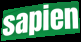
sapien